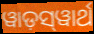
ୱାଡ଼ସ୍‌ୱାର୍ଥ